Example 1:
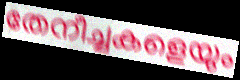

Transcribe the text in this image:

തേനീച്ചകളെയും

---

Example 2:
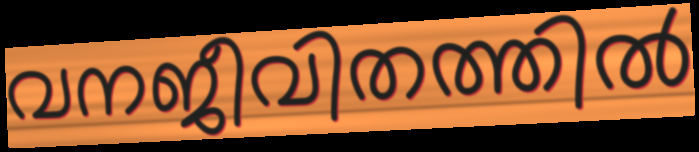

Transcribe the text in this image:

വനജീവിതത്തിൽ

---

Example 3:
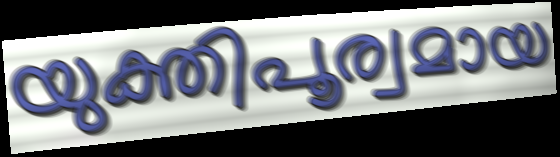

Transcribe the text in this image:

യുക്തിപൂര്വമായ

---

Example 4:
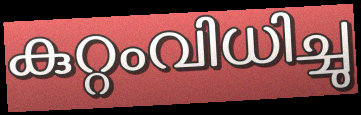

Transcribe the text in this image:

കുറ്റംവിധിച്ചു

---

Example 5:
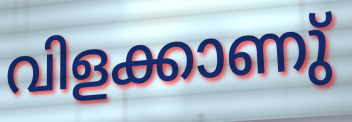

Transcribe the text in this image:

വിളക്കാണു്